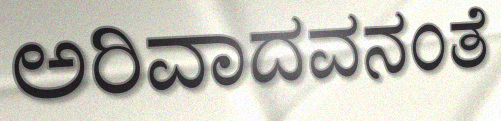
ಅರಿವಾದವನಂತೆ